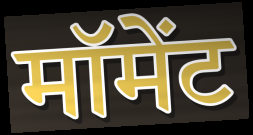
मॉमेंट